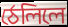
ঠেলিলে